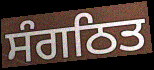
ਸੰਗਠਿਤ